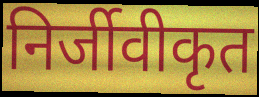
निर्जीवीकृत